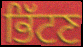
ਭਿੱਟਣ